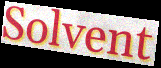
Solvent